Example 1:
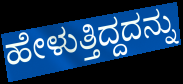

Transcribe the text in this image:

ಹೇಳುತ್ತಿದ್ದದನ್ನು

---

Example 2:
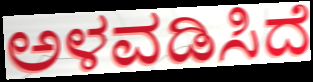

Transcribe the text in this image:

ಅಳವಡಿಸಿದೆ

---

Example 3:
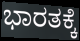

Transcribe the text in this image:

ಭಾರತಕ್ಕೆ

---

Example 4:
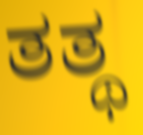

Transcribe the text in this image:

ತತ್ಥ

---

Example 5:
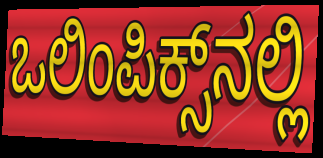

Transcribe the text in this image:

ಒಲಿಂಪಿಕ್ಸ್‌ನಲ್ಲಿ